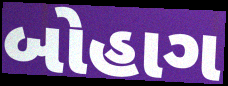
બોહાગ